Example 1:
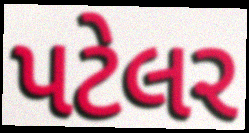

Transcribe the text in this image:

પટેલર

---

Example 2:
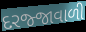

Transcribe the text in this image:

દરજ્જાવાળી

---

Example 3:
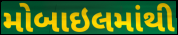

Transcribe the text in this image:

મોબાઇલમાંથી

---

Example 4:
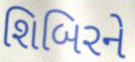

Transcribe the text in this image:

શિબિરને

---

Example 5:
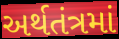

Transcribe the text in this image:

અર્થતંત્રમાં